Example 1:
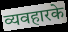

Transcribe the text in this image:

व्यवहारके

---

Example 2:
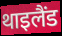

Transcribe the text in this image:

थाइलैंड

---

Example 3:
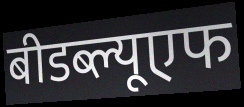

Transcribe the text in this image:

बीडब्ल्यूएफ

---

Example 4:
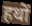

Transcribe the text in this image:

हथों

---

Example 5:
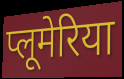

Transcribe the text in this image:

प्लूमेरिया